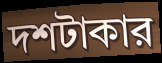
দশটাকার